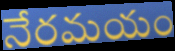
నేరమయం